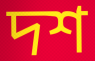
দশ